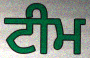
ਟੀਮ